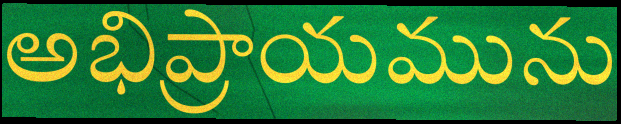
అభిప్రాయమును